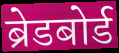
ब्रेडबोर्ड